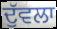
ਦੁੱਵਲਾ